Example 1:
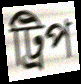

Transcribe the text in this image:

ট্রিপ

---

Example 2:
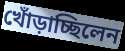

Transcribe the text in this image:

খোঁড়াচ্ছিলেন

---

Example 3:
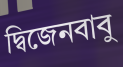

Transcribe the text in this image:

দ্বিজেনবাবু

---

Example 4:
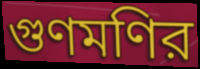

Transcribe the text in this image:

গুণমণির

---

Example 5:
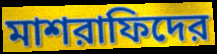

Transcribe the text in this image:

মাশরাফিদের